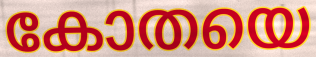
കോതയെ